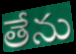
తేను